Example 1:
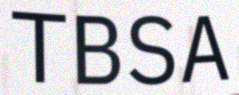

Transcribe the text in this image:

TBSA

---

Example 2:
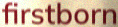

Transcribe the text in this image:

firstborn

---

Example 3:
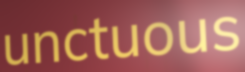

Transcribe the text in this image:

unctuous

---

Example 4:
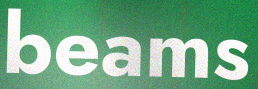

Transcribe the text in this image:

beams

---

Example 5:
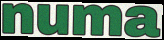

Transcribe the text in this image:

numa